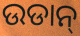
ଉଡାନ୍